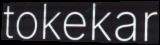
tokekar